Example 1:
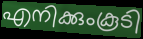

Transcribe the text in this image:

എനിക്കുംകൂടി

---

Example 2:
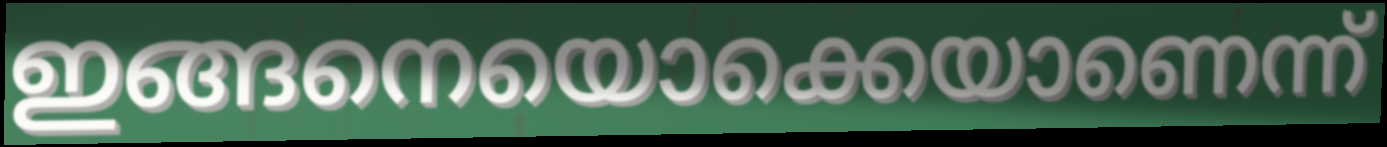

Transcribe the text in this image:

ഇങ്ങനെയൊക്കെയാണെന്ന്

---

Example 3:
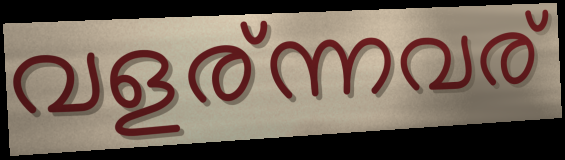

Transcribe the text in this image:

വളര്ന്നവര്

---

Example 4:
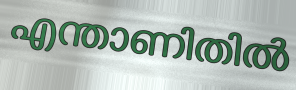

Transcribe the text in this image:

എന്താണിതിൽ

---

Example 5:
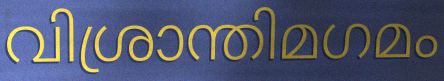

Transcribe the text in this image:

വിശ്രാന്തിമഗമം